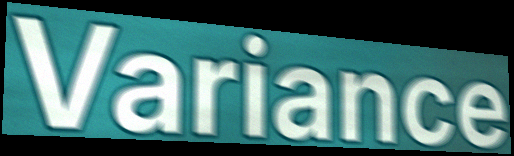
Variance